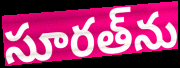
సూరత్‌ను